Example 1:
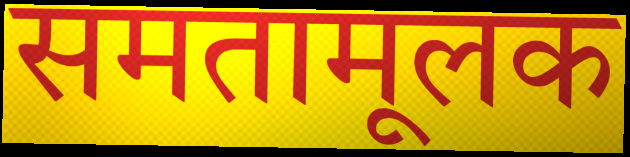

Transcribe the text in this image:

समतामूलक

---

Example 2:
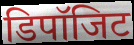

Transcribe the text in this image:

डिपॉजिट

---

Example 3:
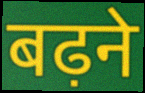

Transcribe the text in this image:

बढ़ने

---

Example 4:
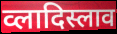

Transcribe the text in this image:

व्लादिस्लाव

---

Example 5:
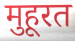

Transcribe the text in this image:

मुहूरत